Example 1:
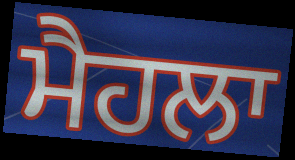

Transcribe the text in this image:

ਮੈਹਲਾ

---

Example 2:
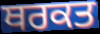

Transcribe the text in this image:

ਥਰਕਤ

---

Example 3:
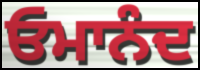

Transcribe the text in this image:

ਓਮਾਨੰਦ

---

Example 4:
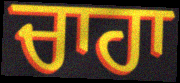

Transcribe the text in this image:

ਚਾਹਾ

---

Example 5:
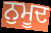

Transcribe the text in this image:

ਨੁਮੂਦ